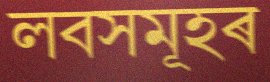
লবসমূহৰ